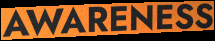
AWARENESS